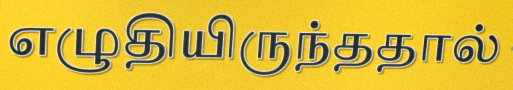
எழுதியிருந்ததால்